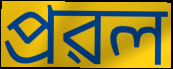
প্ৰৱল